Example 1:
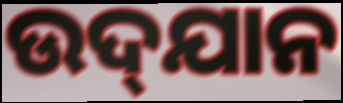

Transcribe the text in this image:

ଉଦ୍‌ଯାନ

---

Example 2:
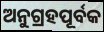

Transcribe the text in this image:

ଅନୁଗ୍ରହପୂର୍ବକ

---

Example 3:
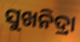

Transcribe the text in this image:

ସୁଖନିଦ୍ରା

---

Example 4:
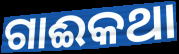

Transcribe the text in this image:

ଗାଈକଥା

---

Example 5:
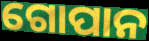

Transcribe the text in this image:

ଗୋପାନ